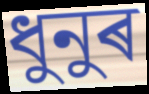
ধুনুৰ